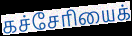
கச்சேரியைக்